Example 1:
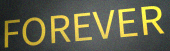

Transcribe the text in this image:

FOREVER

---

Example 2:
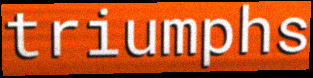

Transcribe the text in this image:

triumphs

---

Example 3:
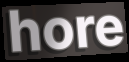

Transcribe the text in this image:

hore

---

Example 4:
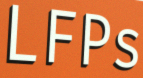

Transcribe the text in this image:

LFPs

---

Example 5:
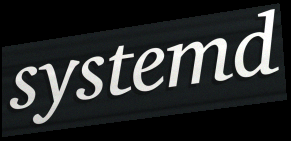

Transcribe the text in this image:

systemd